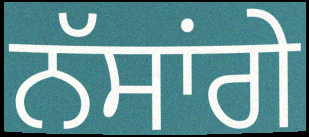
ਨੱਸਾਂਗੇ